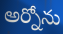
అర్నోను